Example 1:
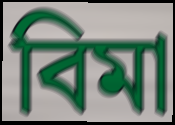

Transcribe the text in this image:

বিমা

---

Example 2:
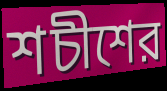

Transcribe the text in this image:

শচীশের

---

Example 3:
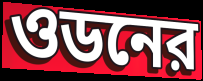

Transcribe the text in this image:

ওডনের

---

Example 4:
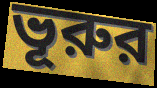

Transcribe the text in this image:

ভূরুর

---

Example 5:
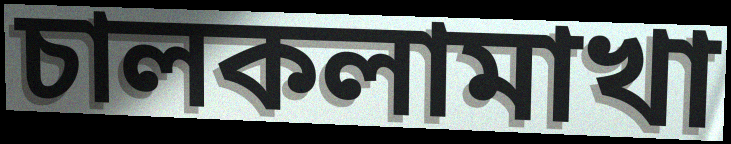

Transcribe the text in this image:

চালকলামাখা